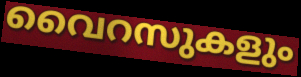
വൈറസുകളും